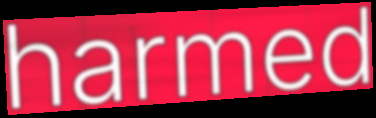
harmed